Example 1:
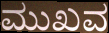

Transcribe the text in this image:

ಮುಖವ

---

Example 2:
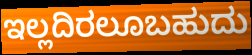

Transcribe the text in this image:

ಇಲ್ಲದಿರಲೂಬಹುದು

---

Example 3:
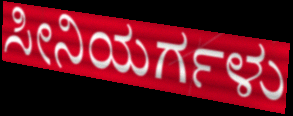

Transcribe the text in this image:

ಸೀನಿಯರ್ಗಳು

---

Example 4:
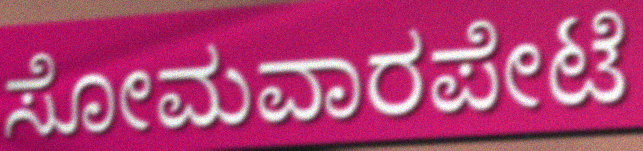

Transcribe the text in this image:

ಸೋಮವಾರಪೇಟೆ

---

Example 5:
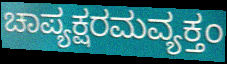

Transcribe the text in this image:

ಚಾಪ್ಯಕ್ಷರಮವ್ಯಕ್ತಂ